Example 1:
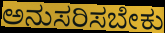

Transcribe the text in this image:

ಅನುಸರಿಸಬೇಕು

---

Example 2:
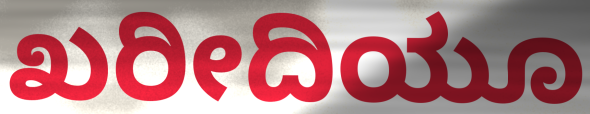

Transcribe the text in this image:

ಖರೀದಿಯೂ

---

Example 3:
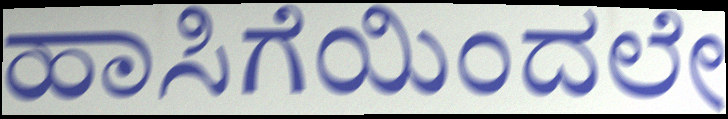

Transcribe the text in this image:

ಹಾಸಿಗೆಯಿಂದಲೇ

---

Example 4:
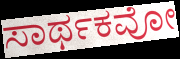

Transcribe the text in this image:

ಸಾರ್ಥಕವೋ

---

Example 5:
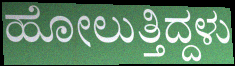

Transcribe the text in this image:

ಹೋಲುತ್ತಿದ್ದಳು